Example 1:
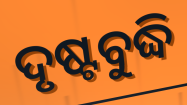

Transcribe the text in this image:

ଦୃଷ୍ଟବୁଦ୍ଧି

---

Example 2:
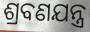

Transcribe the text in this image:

ଶ୍ରବଣଯନ୍ତ୍ର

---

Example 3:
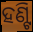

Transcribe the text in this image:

ହଣ୍ଟି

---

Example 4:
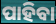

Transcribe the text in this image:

ପାହିବା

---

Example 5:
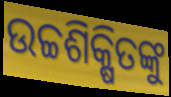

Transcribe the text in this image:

ଉଚ୍ଚଶିକ୍ଷିତଙ୍କୁ